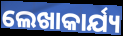
ଲେଖାକାର୍ଯ୍ୟ